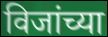
विजांच्या